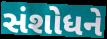
સંશોધને